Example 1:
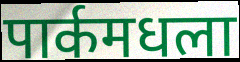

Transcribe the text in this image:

पार्कमधला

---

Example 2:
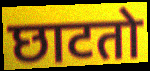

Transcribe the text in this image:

छाटतो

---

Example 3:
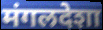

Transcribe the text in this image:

मंगलदेशा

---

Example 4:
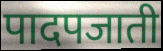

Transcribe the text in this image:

पादपजाती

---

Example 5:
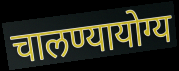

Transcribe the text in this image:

चालण्यायोग्य